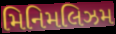
મિનિમલિઝમ